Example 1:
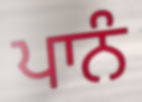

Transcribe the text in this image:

ਪਾਨੰ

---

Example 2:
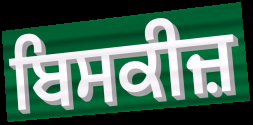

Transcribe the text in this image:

ਬਿਸਕੀਜ਼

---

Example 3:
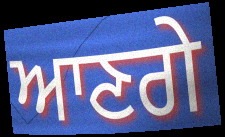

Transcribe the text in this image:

ਆਣਗੇ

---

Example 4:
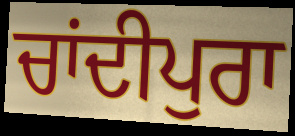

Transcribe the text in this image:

ਚਾਂਦੀਪੁਰਾ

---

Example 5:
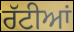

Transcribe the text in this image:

ਰੱਟੀਆਂ